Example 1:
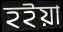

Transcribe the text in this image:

হইয়া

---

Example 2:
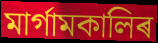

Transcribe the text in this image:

মাৰ্গামকালিৰ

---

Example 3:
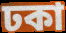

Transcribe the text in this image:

ঢকা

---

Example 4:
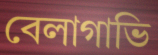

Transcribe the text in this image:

বেলাগাভি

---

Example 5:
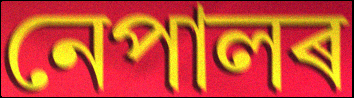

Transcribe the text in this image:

নেপালৰ